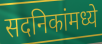
सदनिकांमध्ये